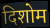
दिशोम